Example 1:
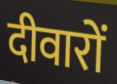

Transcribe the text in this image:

दीवारों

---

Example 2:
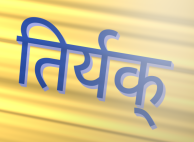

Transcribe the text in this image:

तिर्यक्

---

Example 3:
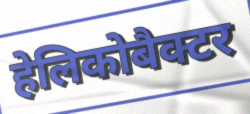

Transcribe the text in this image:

हेलिकोबैक्टर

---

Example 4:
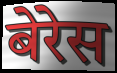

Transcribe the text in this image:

बेरेस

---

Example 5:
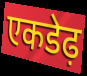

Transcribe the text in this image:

एकडेढ़